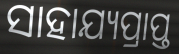
ସାହାଯ୍ୟପ୍ରାପ୍ତ